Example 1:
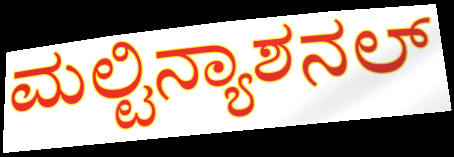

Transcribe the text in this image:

ಮಲ್ಟಿನ್ಯಾಶನಲ್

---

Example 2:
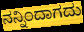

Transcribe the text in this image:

ನನ್ನಿಂದಾಗದು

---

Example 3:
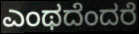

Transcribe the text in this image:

ಎಂಥದೆಂದರೆ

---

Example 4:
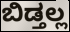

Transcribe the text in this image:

ಬಿಡ್ತಲ್ಲ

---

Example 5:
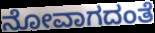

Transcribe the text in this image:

ನೋವಾಗದಂತೆ